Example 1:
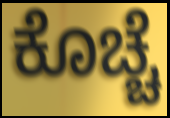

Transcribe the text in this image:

ಕೊಚ್ಚೆ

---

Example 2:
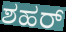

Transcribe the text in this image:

ಶಹರ್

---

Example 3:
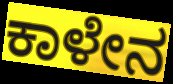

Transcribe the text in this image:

ಕಾಳೇನ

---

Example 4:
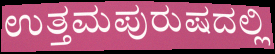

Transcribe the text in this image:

ಉತ್ತಮಪುರುಷದಲ್ಲಿ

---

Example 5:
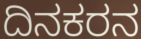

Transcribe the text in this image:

ದಿನಕರನ